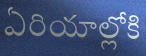
ఏరియాల్లోకి